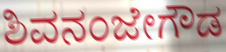
ಶಿವನಂಜೇಗೌಡ